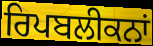
ਰਿਪਬਲੀਕਨਾਂ